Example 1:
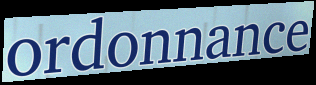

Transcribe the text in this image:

ordonnance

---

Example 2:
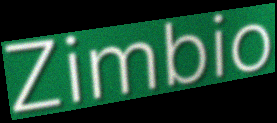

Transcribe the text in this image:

Zimbio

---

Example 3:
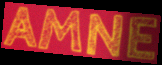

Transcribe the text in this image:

AMNE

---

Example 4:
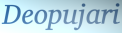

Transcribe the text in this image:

Deopujari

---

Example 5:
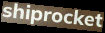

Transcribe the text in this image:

shiprocket